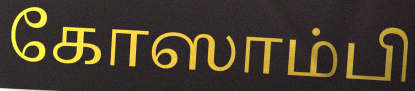
கோஸாம்பி